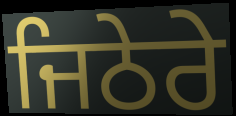
ਜਿਠੇਰੇ